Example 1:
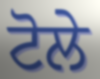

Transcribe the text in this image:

ਟੋਲੇ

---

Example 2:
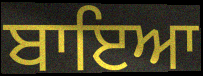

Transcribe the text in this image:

ਬਾਇਆ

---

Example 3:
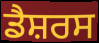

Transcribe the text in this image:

ਡੈਸ਼ਰਸ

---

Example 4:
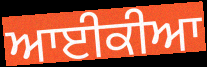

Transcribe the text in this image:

ਆਈਕੀਆ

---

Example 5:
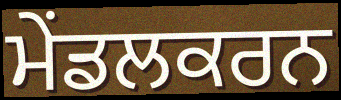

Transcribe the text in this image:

ਮੇਂਡਲਕਰਨ